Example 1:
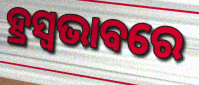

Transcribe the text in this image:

ହ୍ରସ୍ୱଭାବରେ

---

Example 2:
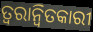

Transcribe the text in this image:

ତ୍ୱରାନ୍ୱିତକାରୀ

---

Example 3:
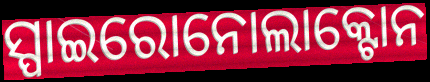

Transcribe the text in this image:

ସ୍ପାଇରୋନୋଲାକ୍ଟୋନ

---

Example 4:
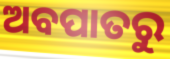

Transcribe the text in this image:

ଅବପାତରୁ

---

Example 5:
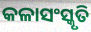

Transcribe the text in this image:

କଳାସଂସ୍କୃତି